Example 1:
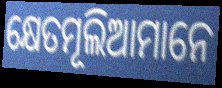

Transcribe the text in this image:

କ୍ଷେତମୂଲିଆମାନେ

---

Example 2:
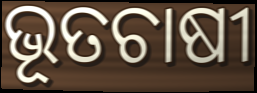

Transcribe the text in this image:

ଭୂତଚାଷୀ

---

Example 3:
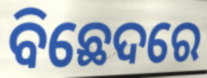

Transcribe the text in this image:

ବିଛେଦରେ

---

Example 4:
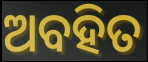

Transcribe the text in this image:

ଅବହିତ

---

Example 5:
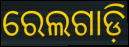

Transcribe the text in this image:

ରେଲଗାଡ଼ି